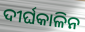
ଦୀର୍ଘକାଳିନ